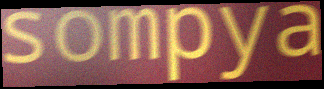
sompya